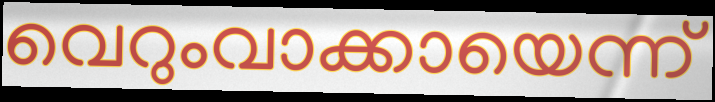
വെറുംവാക്കായെന്ന്